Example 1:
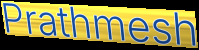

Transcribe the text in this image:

Prathmesh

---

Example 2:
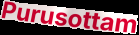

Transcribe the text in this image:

Purusottam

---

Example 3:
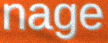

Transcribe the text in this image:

nage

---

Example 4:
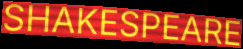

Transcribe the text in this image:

SHAKESPEARE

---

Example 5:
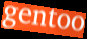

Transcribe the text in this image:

gentoo